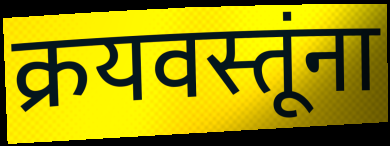
क्रयवस्तूंना